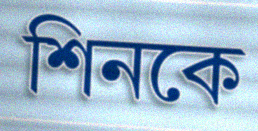
শিনকে